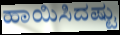
ಹಾಯಿಸಿದಷ್ಟು